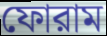
ফোরাম